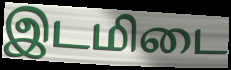
இடமிடை